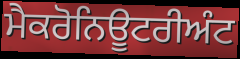
ਮੈਕਰੋਨਿਊਟਰੀਅੰਟ